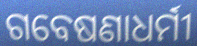
ଗବେଷଣାଧର୍ମୀ